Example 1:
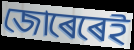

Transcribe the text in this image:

জোৰেৰেই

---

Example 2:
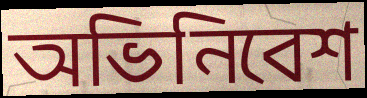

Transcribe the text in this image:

অভিনিবেশ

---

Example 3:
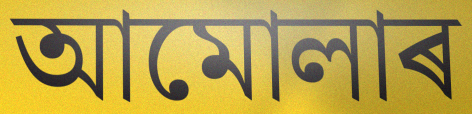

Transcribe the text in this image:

আমোলাৰ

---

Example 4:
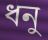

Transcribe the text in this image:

ধনু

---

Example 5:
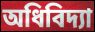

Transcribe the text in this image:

অধিবিদ্যা